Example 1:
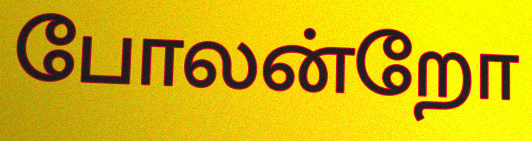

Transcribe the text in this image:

போலன்றோ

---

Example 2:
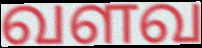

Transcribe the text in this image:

வளவ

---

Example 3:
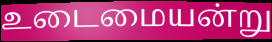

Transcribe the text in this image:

உடைமையன்று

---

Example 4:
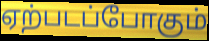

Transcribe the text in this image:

ஏற்படப்போகும்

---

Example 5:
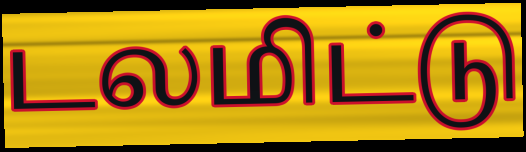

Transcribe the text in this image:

டலமிட்டு